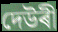
দেউৰী